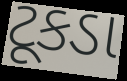
ટૂકડા